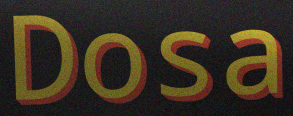
Dosa